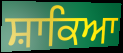
ਸ਼ਾਕਿਆ